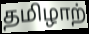
தமிழாற்